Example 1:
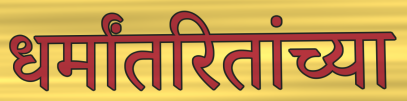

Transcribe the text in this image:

धर्मांतरितांच्या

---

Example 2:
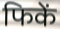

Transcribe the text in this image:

फिकें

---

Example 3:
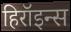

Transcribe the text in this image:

हिरॉइन्स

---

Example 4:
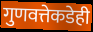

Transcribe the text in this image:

गुणवत्तेकडेही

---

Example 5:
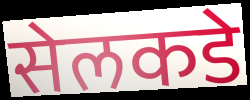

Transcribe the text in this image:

सेलकडे